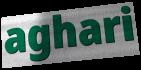
aghari